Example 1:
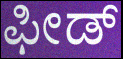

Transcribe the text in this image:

ಫೀಡ್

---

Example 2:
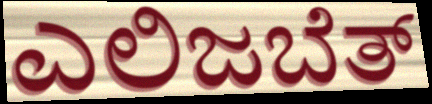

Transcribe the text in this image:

ಎಲಿಜಬೆತ್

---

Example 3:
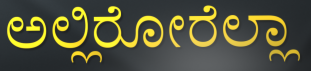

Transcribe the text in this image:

ಅಲ್ಲಿರೋರೆಲ್ಲಾ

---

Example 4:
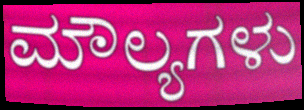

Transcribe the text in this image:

ಮೌಲ್ಯಗಳು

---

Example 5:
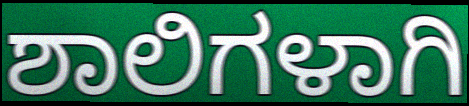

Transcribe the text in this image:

ಶಾಲಿಗಳಾಗಿ